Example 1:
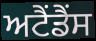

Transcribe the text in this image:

ਅਟੈਂਡੈਂਸ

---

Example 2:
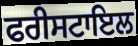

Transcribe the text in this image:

ਫਰੀਸਟਾਇਲ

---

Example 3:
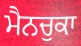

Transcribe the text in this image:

ਮੈਨਚੁਕਾ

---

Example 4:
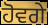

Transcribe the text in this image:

ਹੋਵਗੇ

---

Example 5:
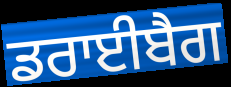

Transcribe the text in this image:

ਡਰਾਈਬੈਗ